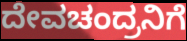
ದೇವಚಂದ್ರನಿಗೆ